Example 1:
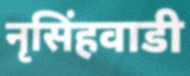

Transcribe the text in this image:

नृसिंहवाडी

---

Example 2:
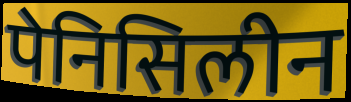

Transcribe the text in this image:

पेनिसिलीन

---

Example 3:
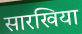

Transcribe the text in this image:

सारखिया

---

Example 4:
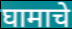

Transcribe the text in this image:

घामाचे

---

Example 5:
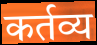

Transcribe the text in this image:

कर्तव्य